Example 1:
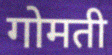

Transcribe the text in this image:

गोमती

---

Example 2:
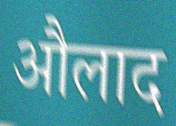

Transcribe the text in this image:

औलाद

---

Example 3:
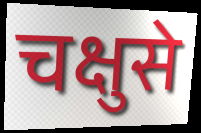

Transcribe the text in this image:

चक्षुसे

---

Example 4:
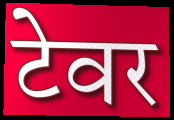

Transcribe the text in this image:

टेवर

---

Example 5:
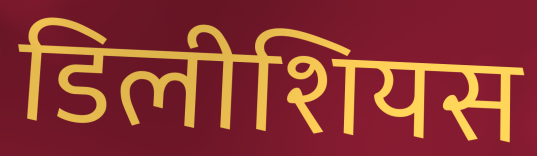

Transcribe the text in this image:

डिलीशियस